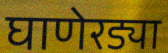
घाणेरड्या